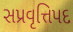
સપ્રવૃત્તિપદ